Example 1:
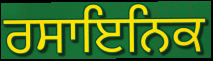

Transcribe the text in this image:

ਰਸਾਇਨਿਕ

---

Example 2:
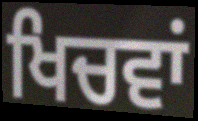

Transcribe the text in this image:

ਖਿਚਵਾਂ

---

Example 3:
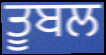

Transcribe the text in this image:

ਤੂਬਲ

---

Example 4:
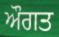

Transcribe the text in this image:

ਔਗਤ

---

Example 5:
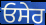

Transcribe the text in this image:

ਓਸੇਰ